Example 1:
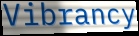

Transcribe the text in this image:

Vibrancy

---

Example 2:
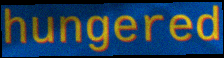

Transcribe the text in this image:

hungered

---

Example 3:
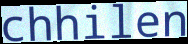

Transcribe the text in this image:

chhilen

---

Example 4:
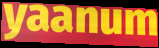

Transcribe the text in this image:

yaanum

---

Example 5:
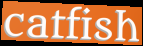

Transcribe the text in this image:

catfish